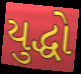
યુદ્ધો